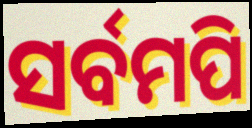
ସର୍ବମପି